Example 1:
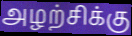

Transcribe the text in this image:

அழற்சிக்கு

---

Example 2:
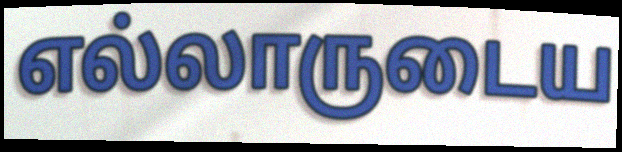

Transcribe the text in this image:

எல்லாருடைய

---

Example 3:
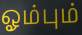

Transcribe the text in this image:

ஓம்பும்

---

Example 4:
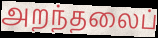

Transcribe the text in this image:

அறந்தலைப்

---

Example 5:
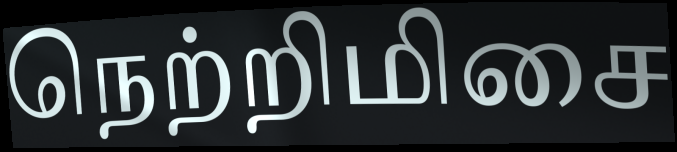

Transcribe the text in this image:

நெற்றிமிசை